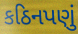
કઠિનપણું